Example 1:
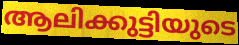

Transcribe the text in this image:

ആലിക്കുട്ടിയുടെ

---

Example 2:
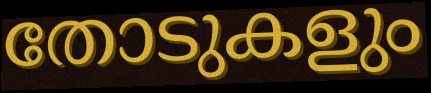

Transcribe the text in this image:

തോടുകളും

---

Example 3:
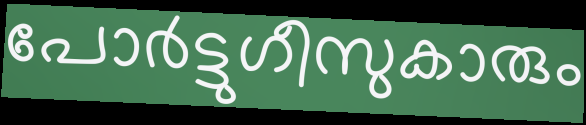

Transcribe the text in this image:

പോർട്ടുഗീസുകാരും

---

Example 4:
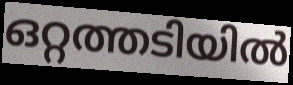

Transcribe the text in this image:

ഒറ്റത്തടിയിൽ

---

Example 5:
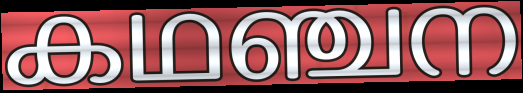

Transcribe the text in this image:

കഥഞ്ചന